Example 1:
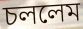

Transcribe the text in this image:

চললেম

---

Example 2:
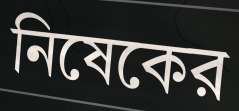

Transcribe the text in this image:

নিষেকের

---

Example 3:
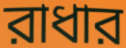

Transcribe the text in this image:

রাধার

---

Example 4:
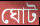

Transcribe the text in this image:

ঘোট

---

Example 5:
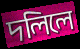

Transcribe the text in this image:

দলিলে